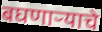
बघणाऱ्याचे